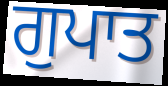
ਗੁਪਾਤ